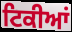
ਟਿਕੀਆਂ